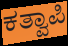
ಕತ್ವಾಪಿ